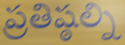
ప్రతిష్ఠల్ని